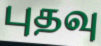
புதவு